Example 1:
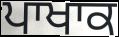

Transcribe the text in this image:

ਪਾਖਾਕ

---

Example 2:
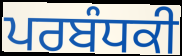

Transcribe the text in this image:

ਪਰਬੰਧਕੀ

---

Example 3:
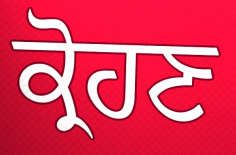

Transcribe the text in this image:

ਕ੍ਰੋਹਣ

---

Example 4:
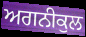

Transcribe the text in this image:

ਅਗਨੀਕੁਲ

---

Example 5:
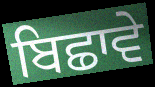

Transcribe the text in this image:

ਬਿਛਾਵੇ